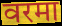
वरमा